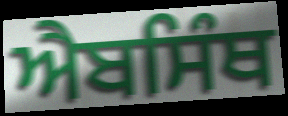
ਐਬਸਿੰਥ